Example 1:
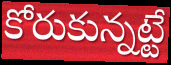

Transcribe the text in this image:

కోరుకున్నట్టే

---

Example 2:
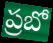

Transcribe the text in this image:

ప్రబో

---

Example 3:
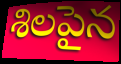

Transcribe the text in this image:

శిలపైన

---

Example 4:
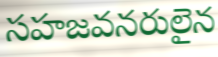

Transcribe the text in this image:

సహజవనరులైన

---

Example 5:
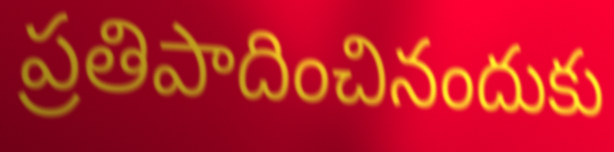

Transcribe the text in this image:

ప్రతిపాదించినందుకు